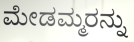
ಮೇಡಮ್ಮರನ್ನು